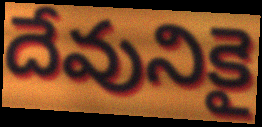
దేవునికై